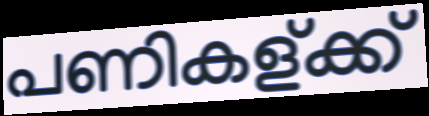
പണികള്ക്ക്